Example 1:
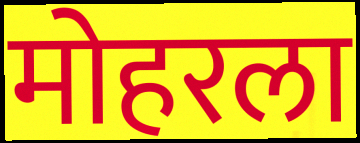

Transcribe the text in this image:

मोहरला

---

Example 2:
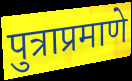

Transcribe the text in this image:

पुत्राप्रमाणे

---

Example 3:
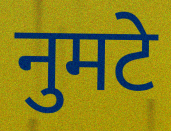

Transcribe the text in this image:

नुमटे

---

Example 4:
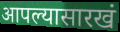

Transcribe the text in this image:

आपल्यासारखं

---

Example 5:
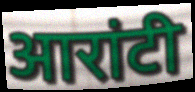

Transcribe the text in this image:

आरांटी